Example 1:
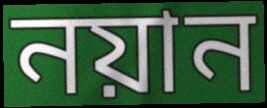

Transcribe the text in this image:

নয়ান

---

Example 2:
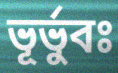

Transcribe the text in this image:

ভূর্ভুবঃ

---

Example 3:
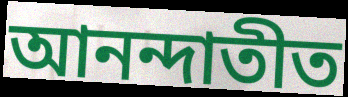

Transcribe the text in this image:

আনন্দাতীত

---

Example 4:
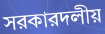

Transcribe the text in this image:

সরকারদলীয়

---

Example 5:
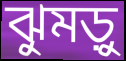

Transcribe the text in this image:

ঝুমড়ু